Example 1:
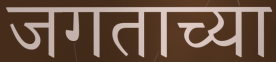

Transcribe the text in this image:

जगताच्या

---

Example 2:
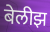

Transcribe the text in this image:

बेलीझ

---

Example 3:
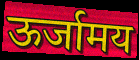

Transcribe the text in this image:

ऊर्जामय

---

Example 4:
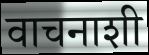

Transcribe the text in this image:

वाचनाशी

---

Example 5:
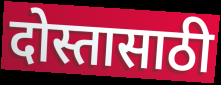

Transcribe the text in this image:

दोस्तासाठी